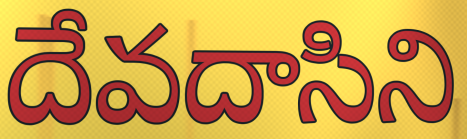
దేవదాసిని